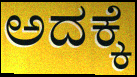
ಅದಕ್ಕೆ